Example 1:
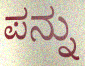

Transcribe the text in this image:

ಪನ್ನು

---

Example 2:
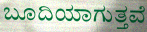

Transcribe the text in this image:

ಬೂದಿಯಾಗುತ್ತವೆ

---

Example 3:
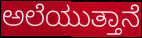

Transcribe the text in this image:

ಅಲೆಯುತ್ತಾನೆ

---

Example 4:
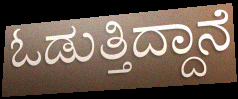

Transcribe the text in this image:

ಓಡುತ್ತಿದ್ದಾನೆ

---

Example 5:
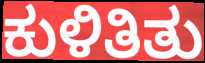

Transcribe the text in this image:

ಕುಳಿತಿತು